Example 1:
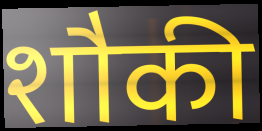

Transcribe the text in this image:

शौकी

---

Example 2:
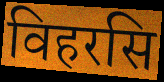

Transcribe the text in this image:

विहरसि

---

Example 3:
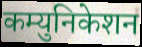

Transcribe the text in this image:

कम्युनिकेशन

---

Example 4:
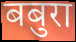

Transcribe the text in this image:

बबुरा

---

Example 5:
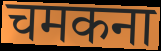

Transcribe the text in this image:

चमकना